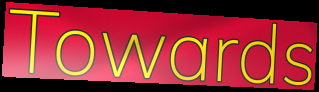
Towards